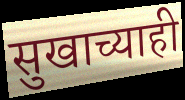
सुखाच्याही